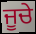
ਜੂਚੇ